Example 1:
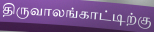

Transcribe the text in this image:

திருவாலங்காட்டிற்கு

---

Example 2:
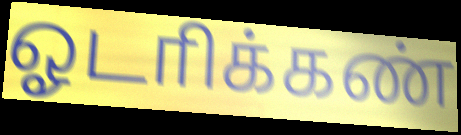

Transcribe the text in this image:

ஓடரிக்கண்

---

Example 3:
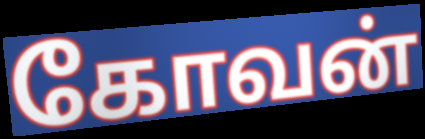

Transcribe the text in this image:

கோவன்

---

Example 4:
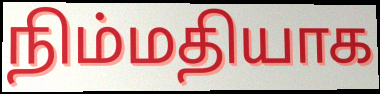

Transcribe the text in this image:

நிம்மதியாக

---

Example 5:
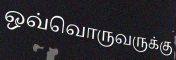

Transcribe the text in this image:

ஒவ்வொருவருக்கு